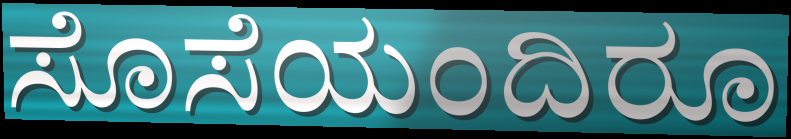
ಸೊಸೆಯಂದಿರೂ